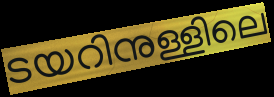
ടയറിനുള്ളിലെ